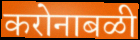
करोनाबळी